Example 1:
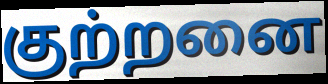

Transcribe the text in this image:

குற்றனை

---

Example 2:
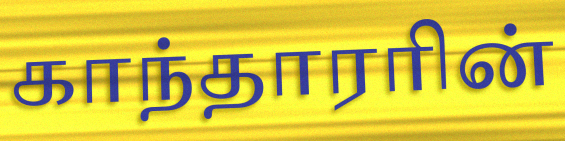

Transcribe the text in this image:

காந்தாரரின்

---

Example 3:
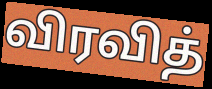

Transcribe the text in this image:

விரவித்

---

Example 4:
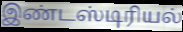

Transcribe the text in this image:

இண்டஸ்டிரியல்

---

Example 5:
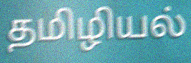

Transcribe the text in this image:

தமிழியல்